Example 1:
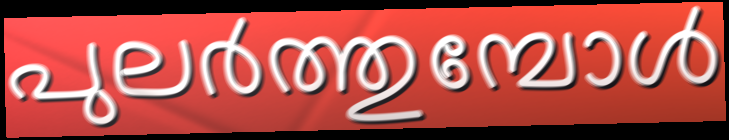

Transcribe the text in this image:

പുലർത്തുമ്പോൾ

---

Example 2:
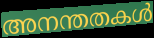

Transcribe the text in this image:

അനന്തതകൾ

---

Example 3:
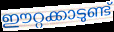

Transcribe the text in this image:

ഈറ്റക്കാടുണ്ട്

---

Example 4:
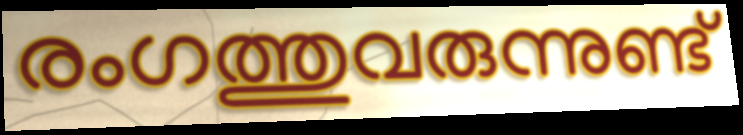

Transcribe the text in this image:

രംഗത്തുവരുന്നുണ്ട്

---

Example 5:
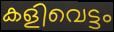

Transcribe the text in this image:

കളിവെട്ടം